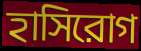
হাসিরোগ